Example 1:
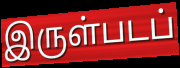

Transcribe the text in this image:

இருள்படப்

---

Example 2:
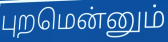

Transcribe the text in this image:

புறமென்னும்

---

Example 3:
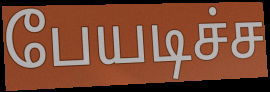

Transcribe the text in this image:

பேயடிச்ச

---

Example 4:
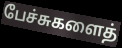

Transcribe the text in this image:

பேச்சுகளைத்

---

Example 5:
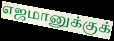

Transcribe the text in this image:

எஜமானுக்குக்